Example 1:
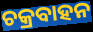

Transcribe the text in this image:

ଚକ୍ରବାହନ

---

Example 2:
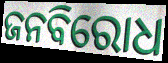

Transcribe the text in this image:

ଜନବିରୋଧ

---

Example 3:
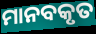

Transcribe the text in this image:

ମାନବକୃତ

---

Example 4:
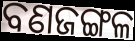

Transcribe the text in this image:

ବଣଜଙ୍ଗଳ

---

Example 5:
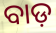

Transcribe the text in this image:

ବାଡ଼